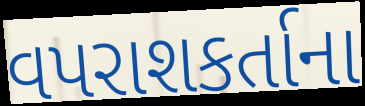
વપરાશકર્તાના